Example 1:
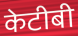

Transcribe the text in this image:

केटीबी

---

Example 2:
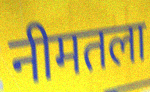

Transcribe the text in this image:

नीमतला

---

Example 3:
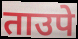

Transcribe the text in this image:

ताउपे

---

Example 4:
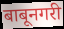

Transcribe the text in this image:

बाबूनगरी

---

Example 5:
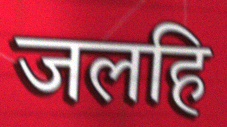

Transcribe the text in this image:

जलहि